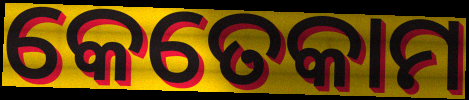
କେତେକାମ